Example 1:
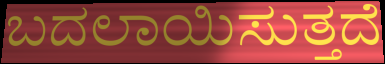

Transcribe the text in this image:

ಬದಲಾಯಿಸುತ್ತದೆ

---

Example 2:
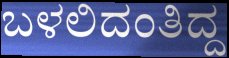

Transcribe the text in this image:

ಬಳಲಿದಂತಿದ್ದ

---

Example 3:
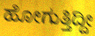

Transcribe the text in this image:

ಹೋಗುತ್ತಿದ್ದೀ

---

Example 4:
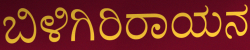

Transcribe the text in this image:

ಬಿಳಿಗಿರಿರಾಯನ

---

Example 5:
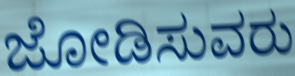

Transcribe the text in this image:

ಜೋಡಿಸುವರು